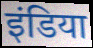
इंडिया